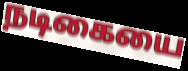
நடிகையை